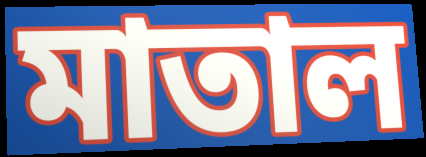
মাতাল